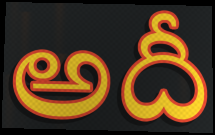
అదీ